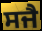
ਸਜੈ